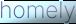
homely